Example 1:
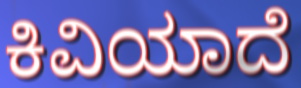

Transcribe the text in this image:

ಕಿವಿಯಾದೆ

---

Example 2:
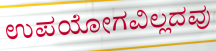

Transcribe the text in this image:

ಉಪಯೋಗವಿಲ್ಲದವು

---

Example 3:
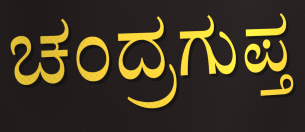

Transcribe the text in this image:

ಚಂದ್ರಗುಪ್ತ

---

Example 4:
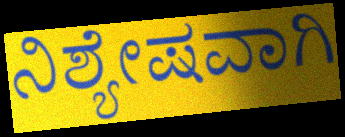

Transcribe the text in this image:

ನಿಶ್ಯೇಷವಾಗಿ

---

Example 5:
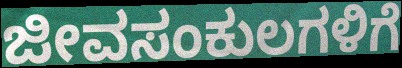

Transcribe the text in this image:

ಜೀವಸಂಕುಲಗಳಿಗೆ